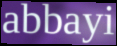
abbayi